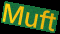
Muft